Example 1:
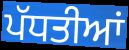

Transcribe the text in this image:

ਪੱਧਤੀਆਂ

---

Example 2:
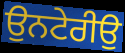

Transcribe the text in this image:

ਉਨਟੇਰੀਉ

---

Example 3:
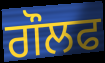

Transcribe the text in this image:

ਗੌਲਫ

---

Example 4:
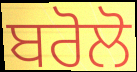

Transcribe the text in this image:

ਬਰੋਲੋ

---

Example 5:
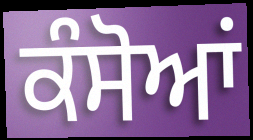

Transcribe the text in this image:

ਕੰਸੋਆਂ